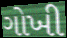
ગોખી